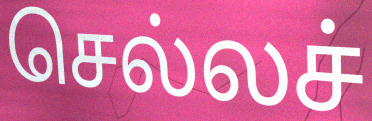
செல்லச்